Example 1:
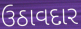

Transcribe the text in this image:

ઉઠાવદાર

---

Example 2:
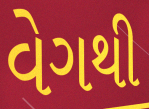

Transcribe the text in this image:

વેગથી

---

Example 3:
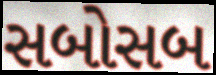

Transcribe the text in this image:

સબોસબ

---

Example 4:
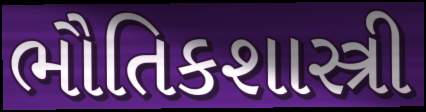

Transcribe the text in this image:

ભૌતિકશાસ્ત્રી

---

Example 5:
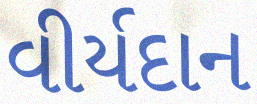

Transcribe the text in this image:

વીર્યદાન